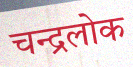
चन्द्रलोक